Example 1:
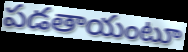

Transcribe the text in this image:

పడతాయంటూ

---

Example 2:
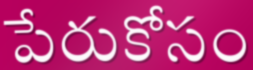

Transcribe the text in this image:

పేరుకోసం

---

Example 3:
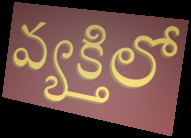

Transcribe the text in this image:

వ్యక్తిలో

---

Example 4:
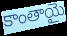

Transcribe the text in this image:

కాంతాయై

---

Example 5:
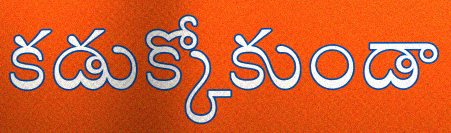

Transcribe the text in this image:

కడుక్కోకుండా